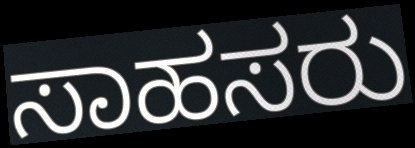
ಸಾಹಸರು